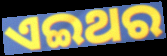
ଏଇଥର